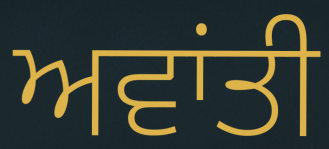
ਅਵਾਂਤੀ